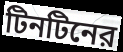
টিনটিনের